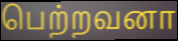
பெற்றவனா